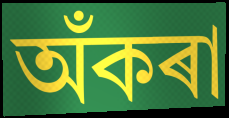
অঁকৰা